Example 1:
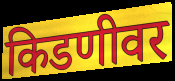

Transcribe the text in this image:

किडणीवर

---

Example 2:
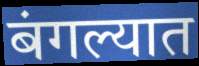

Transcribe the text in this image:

बंगल्यात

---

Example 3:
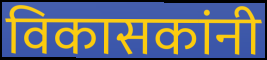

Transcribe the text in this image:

विकासकांनी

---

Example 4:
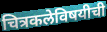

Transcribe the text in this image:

चित्रकलेविषयीची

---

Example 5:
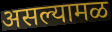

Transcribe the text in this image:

असल्यामळ